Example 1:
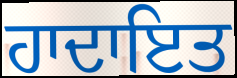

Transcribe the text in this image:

ਹਾਦਾਇਤ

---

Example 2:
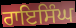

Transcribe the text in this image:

ਰਾਇਸਿੰਘ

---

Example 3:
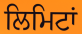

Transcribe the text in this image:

ਲਿਮਿਟਾਂ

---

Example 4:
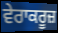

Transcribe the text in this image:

ਵੇਰਾਕਰੂਜ਼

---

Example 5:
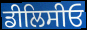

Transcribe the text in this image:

ਡੀਲਿਸੀਓ